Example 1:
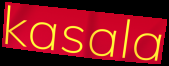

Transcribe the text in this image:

kasala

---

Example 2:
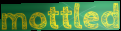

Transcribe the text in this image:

mottled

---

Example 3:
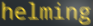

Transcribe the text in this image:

helming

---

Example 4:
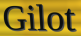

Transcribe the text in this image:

Gilot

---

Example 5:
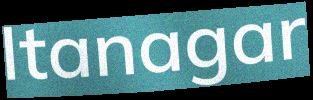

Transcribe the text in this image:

Itanagar